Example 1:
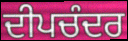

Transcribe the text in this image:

ਦੀਪਚੰਦਰ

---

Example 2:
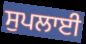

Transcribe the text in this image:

ਸੁਪਲਾਈ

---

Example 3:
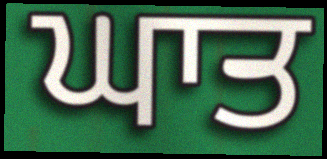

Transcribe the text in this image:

ਘਾਤ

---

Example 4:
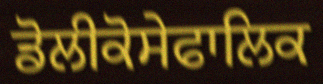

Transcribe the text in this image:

ਡੋਲੀਕੋਸੇਫਾਲਿਕ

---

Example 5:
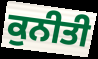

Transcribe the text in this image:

ਕੁਨੀਤੀ